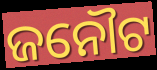
ଜନୌଟ